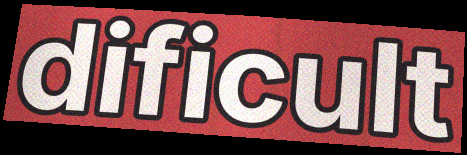
dificult